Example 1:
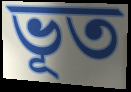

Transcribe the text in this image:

ভূত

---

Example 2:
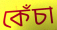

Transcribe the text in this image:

কেঁচা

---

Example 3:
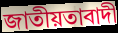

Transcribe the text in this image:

জাতীয়তাবাদী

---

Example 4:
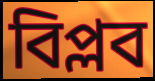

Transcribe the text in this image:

বিপ্লব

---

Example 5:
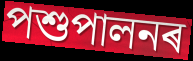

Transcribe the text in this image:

পশুপালনৰ